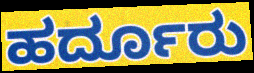
ಹರ್ದೂರು